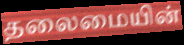
தலைமையின்